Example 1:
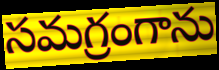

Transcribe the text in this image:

సమగ్రంగాను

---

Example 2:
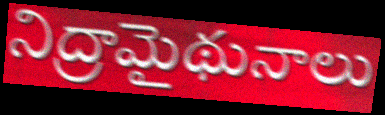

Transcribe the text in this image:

నిద్రామైథునాలు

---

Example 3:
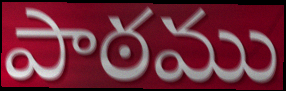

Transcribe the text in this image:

పాఠము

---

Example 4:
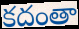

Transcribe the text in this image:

కదంతా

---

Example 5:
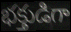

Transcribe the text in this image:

భక్తుడిగా